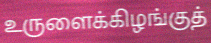
உருளைக்கிழங்குத்